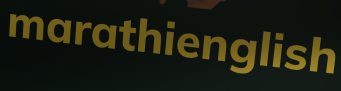
marathienglish